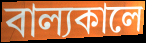
বাল্যকালে